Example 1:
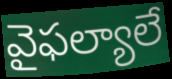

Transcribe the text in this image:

వైఫల్యాలే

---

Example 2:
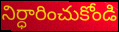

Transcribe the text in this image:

నిర్ధారించుకోండి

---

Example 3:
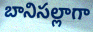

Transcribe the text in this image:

బానిసల్లాగా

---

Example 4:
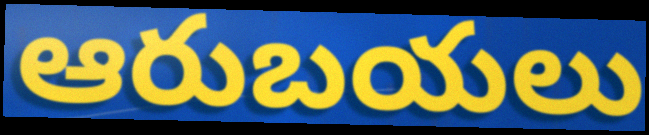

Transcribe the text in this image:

ఆరుబయలు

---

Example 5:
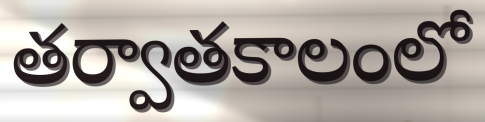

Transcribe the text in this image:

తర్వాతకాలంలో